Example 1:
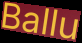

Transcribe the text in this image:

Ballu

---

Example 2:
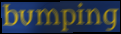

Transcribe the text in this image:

bumping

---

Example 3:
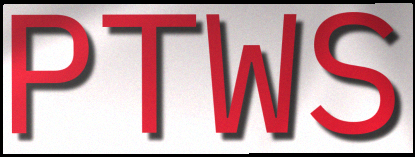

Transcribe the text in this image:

PTWS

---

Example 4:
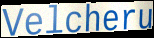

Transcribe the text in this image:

Velcheru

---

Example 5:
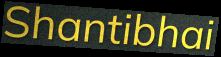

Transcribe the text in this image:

Shantibhai